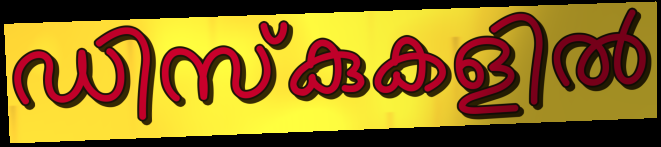
ഡിസ്കുകളിൽ